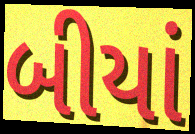
બીયાં